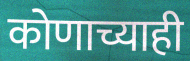
कोणाच्याही